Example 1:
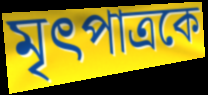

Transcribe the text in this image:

মৃৎপাত্রকে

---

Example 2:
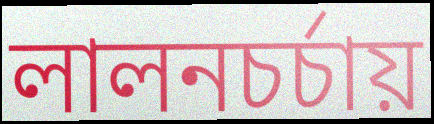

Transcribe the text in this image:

লালনচর্চায়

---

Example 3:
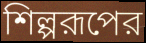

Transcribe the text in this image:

শিল্পরূপের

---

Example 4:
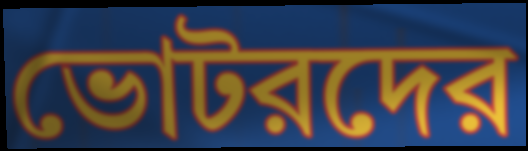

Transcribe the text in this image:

ভোটরদের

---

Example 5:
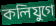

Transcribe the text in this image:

কলিযুগে